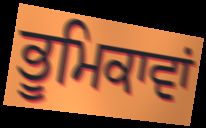
ਭੂਮਿਕਾਵਾਂ